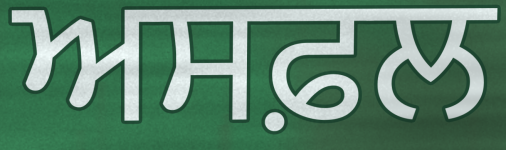
ਅਸਫ਼ਲ